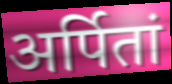
अर्पितां